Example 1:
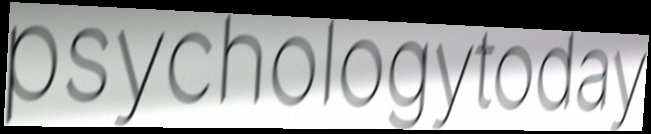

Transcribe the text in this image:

psychologytoday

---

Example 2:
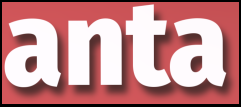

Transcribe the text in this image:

anta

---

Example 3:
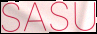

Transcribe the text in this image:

SASU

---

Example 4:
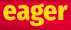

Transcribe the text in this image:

eager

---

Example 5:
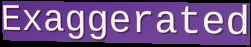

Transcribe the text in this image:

Exaggerated